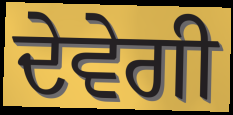
ਦੇਵੇਗੀ